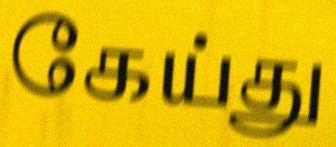
கேய்து